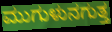
ಮುಗುಳುನಗುತ್ತ